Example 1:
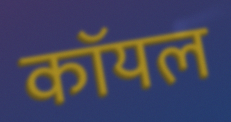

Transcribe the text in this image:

कॉयल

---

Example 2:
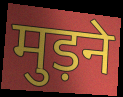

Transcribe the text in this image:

मुड़ने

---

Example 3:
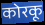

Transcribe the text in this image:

कोरकू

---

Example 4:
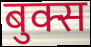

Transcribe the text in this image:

बुक्स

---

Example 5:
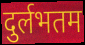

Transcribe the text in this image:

दुर्लभतम